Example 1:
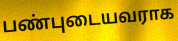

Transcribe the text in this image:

பண்புடையவராக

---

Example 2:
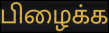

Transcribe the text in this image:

பிழைக்க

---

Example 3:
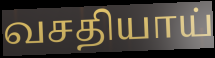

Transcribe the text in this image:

வசதியாய்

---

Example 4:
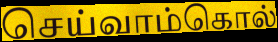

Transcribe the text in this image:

செய்வாம்கொல்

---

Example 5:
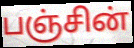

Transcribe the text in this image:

பஞ்சின்